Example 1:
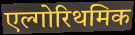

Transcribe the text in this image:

एल्गोरिथमिक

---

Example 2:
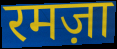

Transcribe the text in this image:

रमज़ा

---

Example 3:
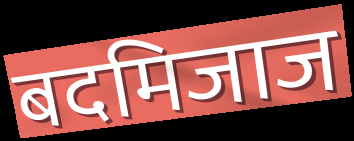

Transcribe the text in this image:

बदमिजाज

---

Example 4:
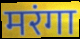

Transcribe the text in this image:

मरंगा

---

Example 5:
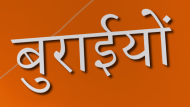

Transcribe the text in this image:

बुराईयों